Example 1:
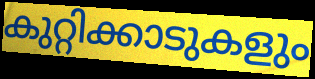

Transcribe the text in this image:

കുറ്റിക്കാടുകളും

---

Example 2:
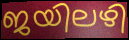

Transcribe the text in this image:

ജയിലഴി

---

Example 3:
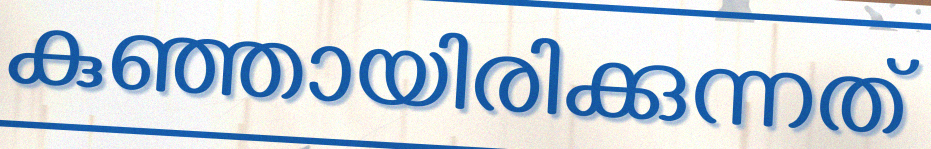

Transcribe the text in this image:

കുഞ്ഞായിരിക്കുന്നത്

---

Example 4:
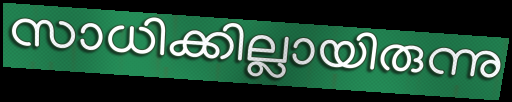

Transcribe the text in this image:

സാധിക്കില്ലായിരുന്നു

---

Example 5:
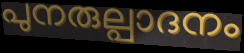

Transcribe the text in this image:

പുനരുല്പാദനം